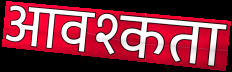
आवश्कता